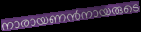
നാരായണൻനായരുടെ